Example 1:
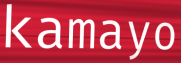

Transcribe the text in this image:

kamayo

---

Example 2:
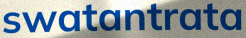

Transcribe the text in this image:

swatantrata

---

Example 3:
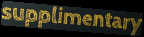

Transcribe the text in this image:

supplimentary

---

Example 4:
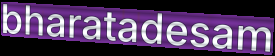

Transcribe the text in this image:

bharatadesam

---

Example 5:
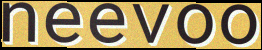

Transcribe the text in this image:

neevoo